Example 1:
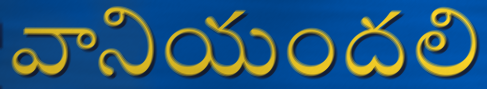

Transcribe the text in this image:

వానియందలి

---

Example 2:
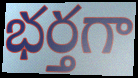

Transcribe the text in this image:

భర్తగా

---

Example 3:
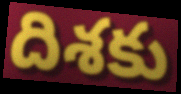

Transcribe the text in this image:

దిశకు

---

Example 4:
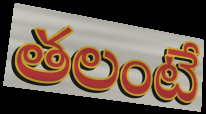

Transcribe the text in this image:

తలంటే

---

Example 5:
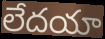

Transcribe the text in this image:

లేదయా